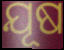
ଯୂଷ